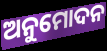
ଅନୁମୋଦନ